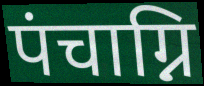
पंचाग्नि